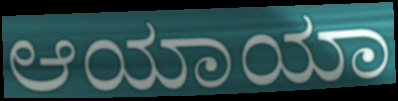
ಆಯಾಯಾ